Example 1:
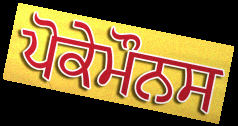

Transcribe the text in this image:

ਪੋਕੇਮੌਨਸ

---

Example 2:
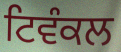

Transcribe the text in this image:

ਟਿਵੰਕਲ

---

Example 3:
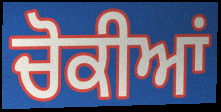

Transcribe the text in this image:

ਚੋਕੀਆਂ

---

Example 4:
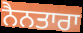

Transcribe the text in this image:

ਨੈਨਤਾਰਾ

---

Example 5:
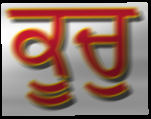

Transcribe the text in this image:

ਕੂਚੁ